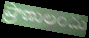
ప్రాణులందు